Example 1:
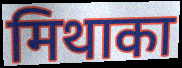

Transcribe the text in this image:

मिथाका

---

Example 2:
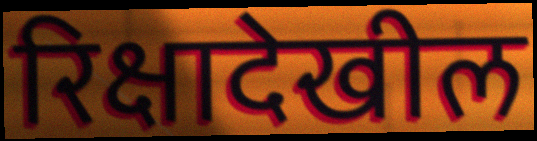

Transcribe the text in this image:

रिक्षादेखील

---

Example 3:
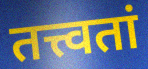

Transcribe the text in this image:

तत्त्वतां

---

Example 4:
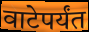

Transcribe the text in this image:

वाटेपर्यंत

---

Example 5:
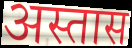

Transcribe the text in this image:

अस्तास